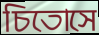
চিতোসে